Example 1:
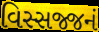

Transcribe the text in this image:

વિસ્સજ્જનં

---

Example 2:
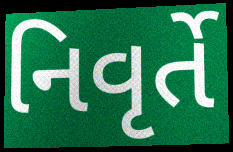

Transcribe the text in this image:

નિવૃર્તે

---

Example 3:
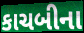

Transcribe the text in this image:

કાચબીના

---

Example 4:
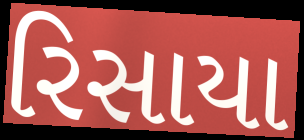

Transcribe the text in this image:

રિસાયા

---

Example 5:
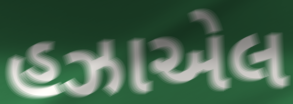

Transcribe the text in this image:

હઝાએલ